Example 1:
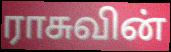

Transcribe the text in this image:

ராசுவின்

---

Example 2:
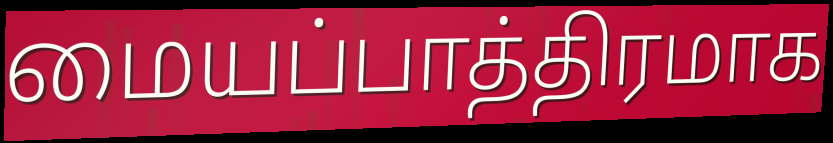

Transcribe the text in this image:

மையப்பாத்திரமாக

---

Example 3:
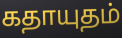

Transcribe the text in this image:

கதாயுதம்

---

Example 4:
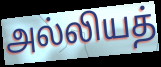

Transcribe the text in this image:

அல்லியத்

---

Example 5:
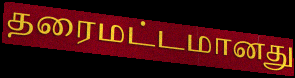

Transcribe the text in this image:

தரைமட்டமானது